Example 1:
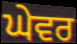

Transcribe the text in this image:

ਘੇਵਰ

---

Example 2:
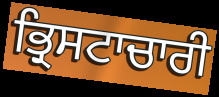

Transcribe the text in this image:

ਭ੍ਰਿਸਟਾਚਾਰੀ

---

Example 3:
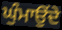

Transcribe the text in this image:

ਘੁੰਮਾਉਂਦੇ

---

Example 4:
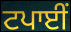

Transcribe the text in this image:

ਟਪਾਈਂ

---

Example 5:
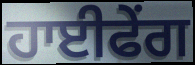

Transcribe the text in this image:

ਹਾਈਫੇਂਗ